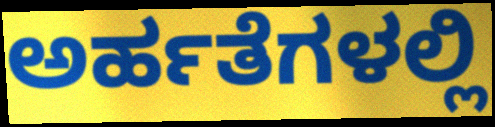
ಅರ್ಹತೆಗಳಲ್ಲಿ